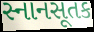
સ્નાનસૂતક